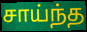
சாய்ந்த